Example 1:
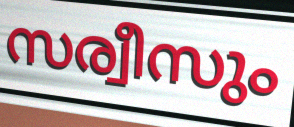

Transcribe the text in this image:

സര്വീസും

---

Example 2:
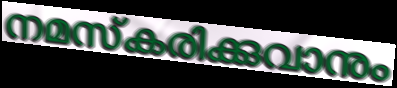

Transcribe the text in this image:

നമസ്‌കരിക്കുവാനും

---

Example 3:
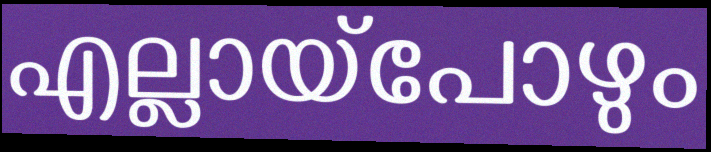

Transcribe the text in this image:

എല്ലായ്പോഴും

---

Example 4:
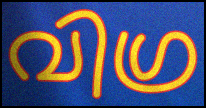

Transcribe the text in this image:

വിഗ്ര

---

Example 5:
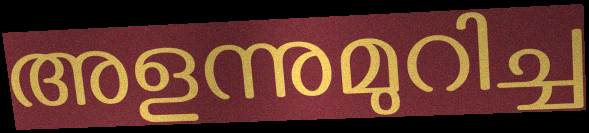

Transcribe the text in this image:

അളന്നുമുറിച്ച